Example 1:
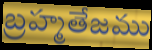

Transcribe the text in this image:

బ్రహ్మతేజము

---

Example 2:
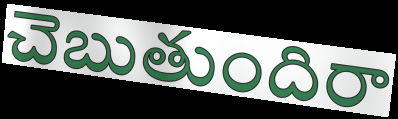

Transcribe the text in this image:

చెబుతుందిరా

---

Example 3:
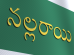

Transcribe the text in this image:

నల్లరాయి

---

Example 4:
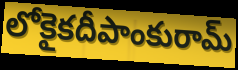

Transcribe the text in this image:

లోకైకదీపాంకురామ్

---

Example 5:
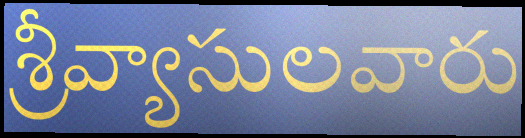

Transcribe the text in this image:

శ్రీవ్యాసులవారు